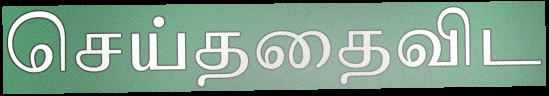
செய்ததைவிட